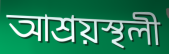
আশ্ৰয়স্থলী